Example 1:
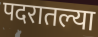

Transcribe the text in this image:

पदरातल्या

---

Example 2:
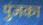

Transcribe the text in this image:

पुंजका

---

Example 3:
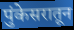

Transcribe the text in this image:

पुंकेसरातून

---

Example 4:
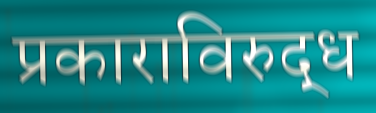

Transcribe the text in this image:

प्रकाराविरुद्ध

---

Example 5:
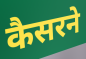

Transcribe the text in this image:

कैसरने